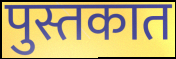
पुस्तकात